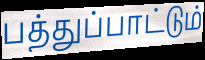
பத்துப்பாட்டும்